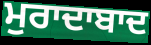
ਮੁਰਾਦਾਬਾਦ